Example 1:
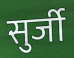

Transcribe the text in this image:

सुर्जी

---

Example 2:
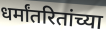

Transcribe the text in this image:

धर्मांतरितांच्या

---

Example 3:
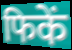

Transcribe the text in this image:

फिकें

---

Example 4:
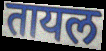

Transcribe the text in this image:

तायल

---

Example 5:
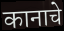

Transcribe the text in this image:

कानाचे